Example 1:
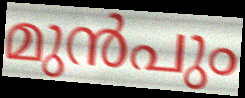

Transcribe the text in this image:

മുൻപും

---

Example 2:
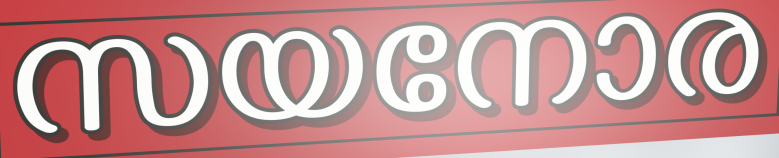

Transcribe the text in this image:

സയനോര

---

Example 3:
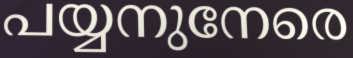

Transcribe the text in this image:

പയ്യനുനേരെ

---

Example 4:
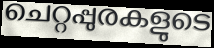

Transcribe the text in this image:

ചെറ്റപ്പുരകളുടെ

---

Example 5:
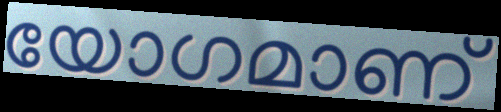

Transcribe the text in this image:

യോഗമാണ്